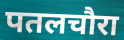
पतलचौरा